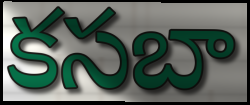
కసబా